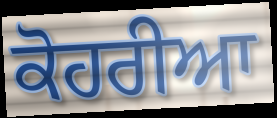
ਕੋਹਰੀਆ